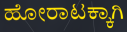
ಹೋರಾಟಕ್ಕಾಗಿ